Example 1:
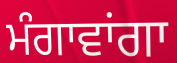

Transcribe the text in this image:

ਮੰਗਾਵਾਂਗਾ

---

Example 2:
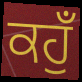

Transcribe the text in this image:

ਕਹੁਁ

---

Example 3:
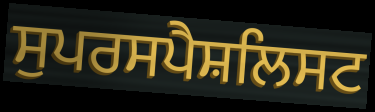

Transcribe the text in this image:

ਸੁਪਰਸਪੈਸ਼ਲਿਸਟ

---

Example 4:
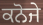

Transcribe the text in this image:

ਕਨੋਜੇ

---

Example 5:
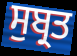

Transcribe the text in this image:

ਸੁਬ੍ਰਤ